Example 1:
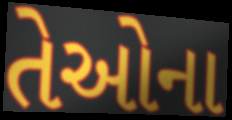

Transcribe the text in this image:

તેઓના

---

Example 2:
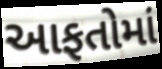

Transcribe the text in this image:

આફતોમાં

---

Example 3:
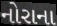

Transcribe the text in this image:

નોરાના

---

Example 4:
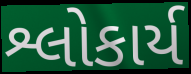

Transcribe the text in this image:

શ્લોકાર્ય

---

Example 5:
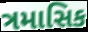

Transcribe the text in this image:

ત્રમાસિક